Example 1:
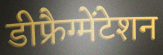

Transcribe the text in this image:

डीफ्रैग्मेंटेशन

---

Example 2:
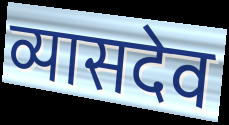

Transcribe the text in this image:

व्यासदेव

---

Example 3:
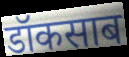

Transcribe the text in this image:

डॉकसाब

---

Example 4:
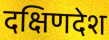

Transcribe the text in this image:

दक्षिणदेश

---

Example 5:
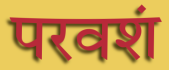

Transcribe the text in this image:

परवशं